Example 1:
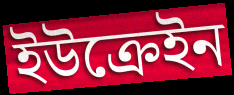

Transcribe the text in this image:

ইউক্ৰেইন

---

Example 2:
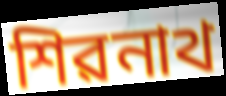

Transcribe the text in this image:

শিৱনাথ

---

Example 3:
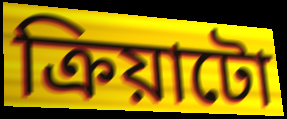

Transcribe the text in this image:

ক্ৰিয়াটো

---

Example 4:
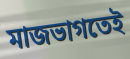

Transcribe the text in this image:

মাজভাগতেই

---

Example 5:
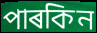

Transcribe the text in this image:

পাৰকিন